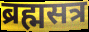
ब्रह्मसत्र